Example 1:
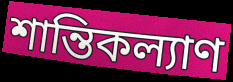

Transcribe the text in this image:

শান্তিকল্যাণ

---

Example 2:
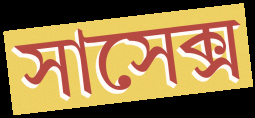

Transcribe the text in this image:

সাসেক্স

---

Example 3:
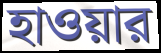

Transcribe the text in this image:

হাওয়ার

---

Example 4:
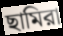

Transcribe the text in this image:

ছামিরা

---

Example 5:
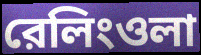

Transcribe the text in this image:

রেলিংওলা